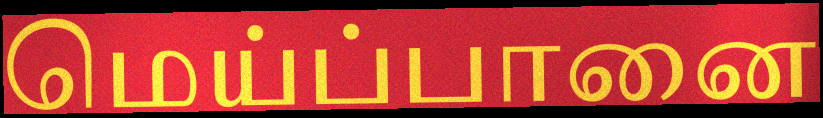
மெய்ப்பானை